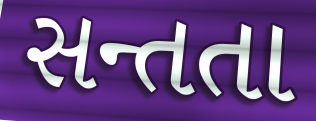
સન્તતા